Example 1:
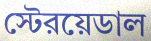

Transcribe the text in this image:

স্টেরয়েডাল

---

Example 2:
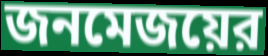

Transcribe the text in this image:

জনমেজয়ের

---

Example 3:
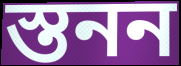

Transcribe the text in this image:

স্তনন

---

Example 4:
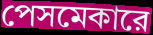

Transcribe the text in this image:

পেসমেকারে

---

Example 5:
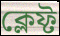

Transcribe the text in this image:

ক্লেফ্ট